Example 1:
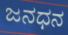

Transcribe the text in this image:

ಜನಧನ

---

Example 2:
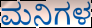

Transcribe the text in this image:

ಮನಿಗಳ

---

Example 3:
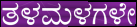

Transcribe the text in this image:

ತಳಮಳಗಳೇ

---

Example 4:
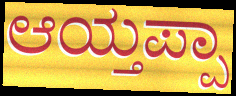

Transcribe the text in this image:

ಆಯ್ತಪ್ಪಾ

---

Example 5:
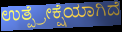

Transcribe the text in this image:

ಉತ್ಪ್ರೇಕ್ಷೆಯಾಗಿದೆ